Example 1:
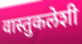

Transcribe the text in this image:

वास्तुकलेशी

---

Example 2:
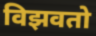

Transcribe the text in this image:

विझवतो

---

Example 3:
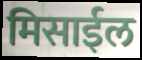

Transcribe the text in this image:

मिसाईल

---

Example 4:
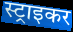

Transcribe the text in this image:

स्ट्राइकर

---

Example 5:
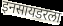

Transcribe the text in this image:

इनसायडरला